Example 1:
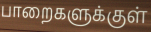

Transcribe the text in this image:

பாறைகளுக்குள்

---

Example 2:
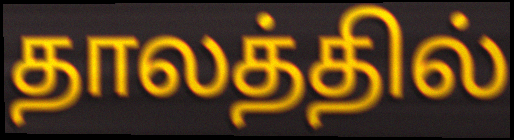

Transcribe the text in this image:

தாலத்தில்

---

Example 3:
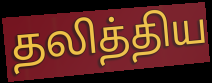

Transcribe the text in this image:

தலித்திய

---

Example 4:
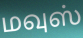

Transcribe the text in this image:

மவுஸ்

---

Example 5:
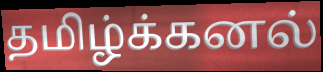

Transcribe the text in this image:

தமிழ்க்கனல்